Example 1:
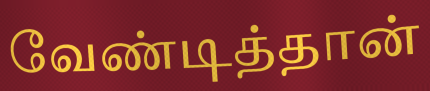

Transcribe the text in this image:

வேண்டித்தான்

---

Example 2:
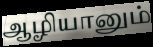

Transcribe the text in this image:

ஆழியானும்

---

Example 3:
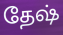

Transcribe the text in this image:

தேஷ்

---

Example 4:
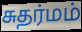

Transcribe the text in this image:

சுதர்மம்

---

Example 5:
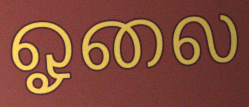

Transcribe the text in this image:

ஓலை